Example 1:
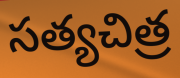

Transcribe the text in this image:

సత్యచిత్ర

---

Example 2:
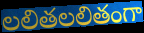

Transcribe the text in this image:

లలితలలితంగా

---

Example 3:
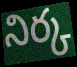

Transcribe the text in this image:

నిర్క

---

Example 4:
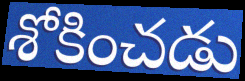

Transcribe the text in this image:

శోకించడు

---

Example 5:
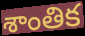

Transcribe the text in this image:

శాంతిక